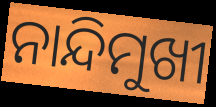
ନାନ୍ଦିମୁଖୀ